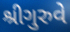
શ્રીગુરુવે